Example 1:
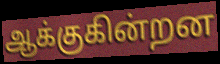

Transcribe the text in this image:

ஆக்குகின்றன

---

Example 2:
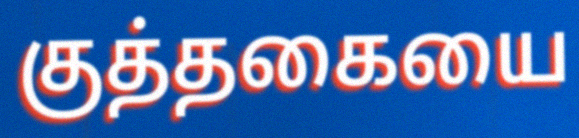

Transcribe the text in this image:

குத்தகையை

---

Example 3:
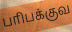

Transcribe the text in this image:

பரிபக்குவ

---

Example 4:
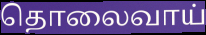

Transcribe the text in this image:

தொலைவாய்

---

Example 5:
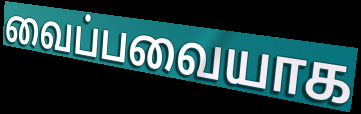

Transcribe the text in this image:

வைப்பவையாக